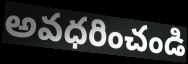
అవధరించండి